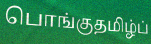
பொங்குதமிழ்ப்